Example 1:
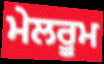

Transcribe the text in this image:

ਮੇਲਰੂਮ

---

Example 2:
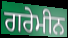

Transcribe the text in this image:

ਗਰੇਮੀਨ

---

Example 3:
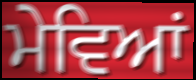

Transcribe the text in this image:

ਮੇਵਿਆਂ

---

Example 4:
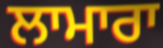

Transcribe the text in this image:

ਲਾਮਾਰਾ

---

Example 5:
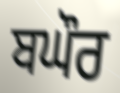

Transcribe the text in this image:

ਬਘੌਰ